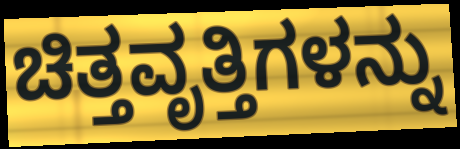
ಚಿತ್ತವೃತ್ತಿಗಳನ್ನು